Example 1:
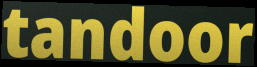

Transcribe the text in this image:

tandoor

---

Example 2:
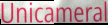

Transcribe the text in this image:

Unicameral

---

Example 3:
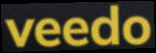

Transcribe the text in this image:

veedo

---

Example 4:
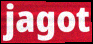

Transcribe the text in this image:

jagot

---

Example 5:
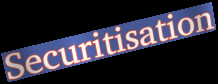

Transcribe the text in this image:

Securitisation